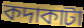
কদাকাটা